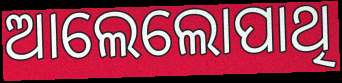
ଆଲେଲୋପାଥି